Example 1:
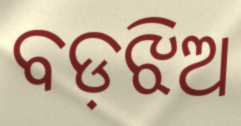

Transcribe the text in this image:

ବଡ଼ଝିଅ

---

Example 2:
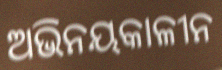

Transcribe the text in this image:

ଅଭିନୟକାଳୀନ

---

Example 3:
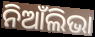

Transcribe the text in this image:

ନିଆଁଲିଭା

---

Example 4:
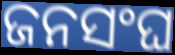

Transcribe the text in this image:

ଜନସଂଘ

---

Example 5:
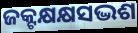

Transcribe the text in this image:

ଜକ୍ଟକ୍ଷକ୍ଷସଦ୍ଭଶ